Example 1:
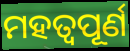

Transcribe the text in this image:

ମହତ୍ୱପୂର୍ଣ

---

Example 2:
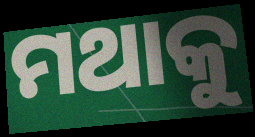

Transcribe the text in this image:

ମଥାକୁ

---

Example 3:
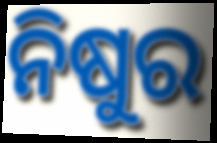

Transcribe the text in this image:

ନିଷୁର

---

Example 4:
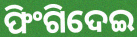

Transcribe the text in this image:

ଫିଂଗିଦେଇ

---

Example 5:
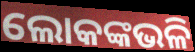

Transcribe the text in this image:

ଲୋକଙ୍କଭଳି